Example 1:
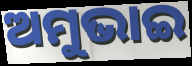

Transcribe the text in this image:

ଅମୁଭାଇ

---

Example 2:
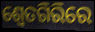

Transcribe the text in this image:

ଶ୍ୱେତଗିରିରେ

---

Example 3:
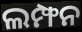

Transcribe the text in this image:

ଲମ୍ଫନ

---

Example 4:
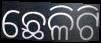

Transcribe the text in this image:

ଛେଳିଟି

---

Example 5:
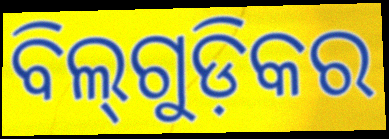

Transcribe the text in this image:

ବିଲ୍‌ଗୁଡ଼ିକର